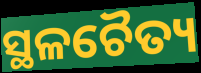
ସ୍ଥଳଚୈତ୍ୟ